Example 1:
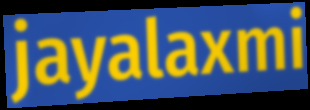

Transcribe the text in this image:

jayalaxmi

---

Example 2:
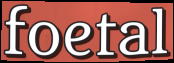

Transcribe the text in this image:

foetal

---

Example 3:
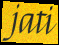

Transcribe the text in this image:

jati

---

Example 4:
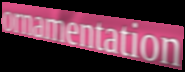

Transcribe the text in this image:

ornamentation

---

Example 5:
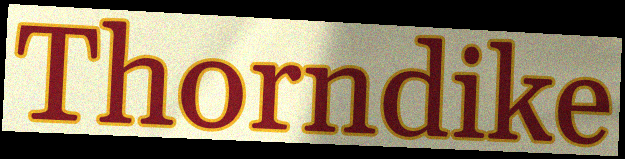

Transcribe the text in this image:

Thorndike